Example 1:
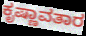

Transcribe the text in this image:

ಕೃಷ್ಣಾವತಾರ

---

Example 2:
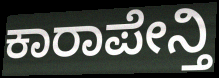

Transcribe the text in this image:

ಕಾರಾಪೇನ್ತಿ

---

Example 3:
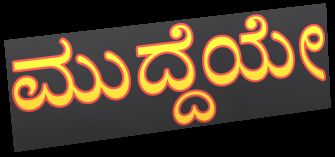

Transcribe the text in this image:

ಮುದ್ದೆಯೇ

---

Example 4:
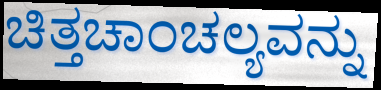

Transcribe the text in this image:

ಚಿತ್ತಚಾಂಚಲ್ಯವನ್ನು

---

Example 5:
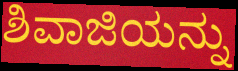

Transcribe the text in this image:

ಶಿವಾಜಿಯನ್ನು